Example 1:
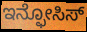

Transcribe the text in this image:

ಇನ್ಫೋಸಿಸ್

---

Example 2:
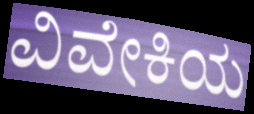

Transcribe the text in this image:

ವಿವೇಕಿಯ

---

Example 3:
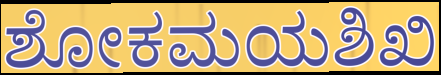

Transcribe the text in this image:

ಶೋಕಮಯಶಿಖಿ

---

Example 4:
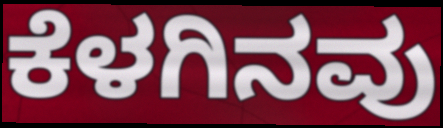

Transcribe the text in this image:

ಕೆಳಗಿನವು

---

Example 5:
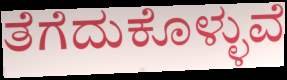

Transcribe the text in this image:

ತೆಗೆದುಕೊಳ್ಳುವೆ